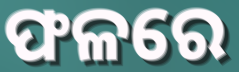
ଫଳରେ